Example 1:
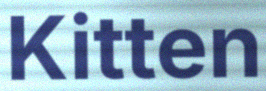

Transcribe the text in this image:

Kitten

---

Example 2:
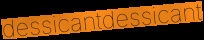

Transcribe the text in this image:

dessicantdessicant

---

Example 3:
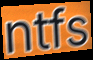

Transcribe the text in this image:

ntfs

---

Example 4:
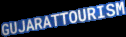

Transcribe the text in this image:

GUJARATTOURISM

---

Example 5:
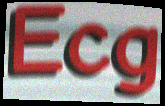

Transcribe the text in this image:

Ecg